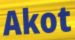
Akot